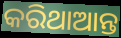
କରିଥାଆନ୍ତ